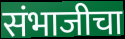
संभाजीचा